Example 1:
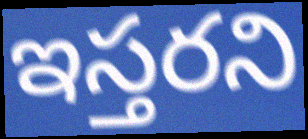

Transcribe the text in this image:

ఇస్తరని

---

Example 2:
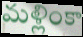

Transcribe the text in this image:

మళ్లింకా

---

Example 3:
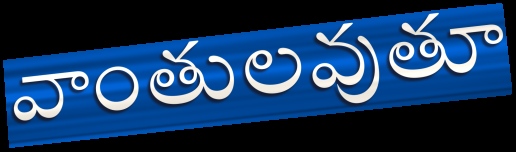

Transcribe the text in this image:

వాంతులవుతూ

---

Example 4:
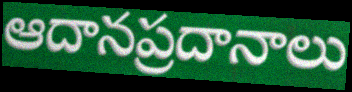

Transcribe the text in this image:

ఆదానప్రదానాలు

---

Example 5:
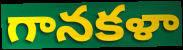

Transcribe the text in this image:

గానకళా